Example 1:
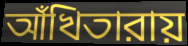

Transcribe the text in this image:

আঁখিতারায়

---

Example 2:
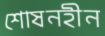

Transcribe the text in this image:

শোষনহীন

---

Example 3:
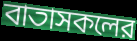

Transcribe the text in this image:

বাতাসকলের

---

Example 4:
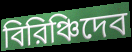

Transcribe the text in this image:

বিরিঞ্চিদেব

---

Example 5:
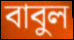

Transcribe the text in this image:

বাবুল